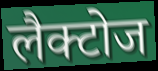
लैक्टोज